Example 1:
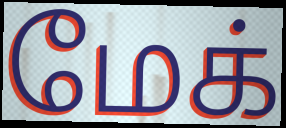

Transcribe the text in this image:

மேக்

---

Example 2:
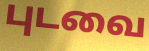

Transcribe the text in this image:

புடவை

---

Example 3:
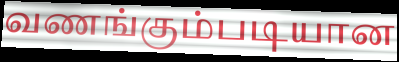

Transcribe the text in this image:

வணங்கும்படியான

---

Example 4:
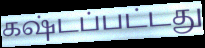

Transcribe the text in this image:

கஷ்டப்பட்டது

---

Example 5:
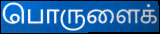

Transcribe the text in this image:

பொருளைக்